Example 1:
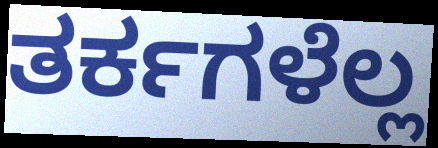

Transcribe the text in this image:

ತರ್ಕಗಳೆಲ್ಲ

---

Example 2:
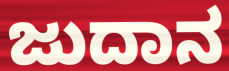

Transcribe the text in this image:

ಜುದಾನ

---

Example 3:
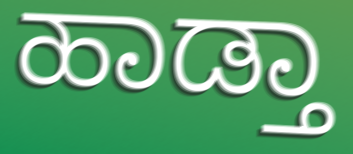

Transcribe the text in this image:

ಹಾಡ್ತಾ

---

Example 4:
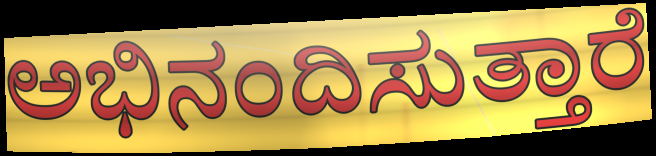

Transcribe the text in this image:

ಅಭಿನಂದಿಸುತ್ತಾರೆ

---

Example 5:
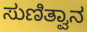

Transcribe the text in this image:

ಸುಣಿತ್ವಾನ